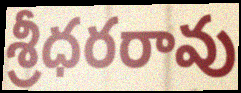
శ్రీధరరావు